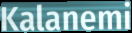
Kalanemi